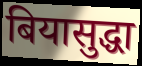
बियासुद्धा